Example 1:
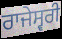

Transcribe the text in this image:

ਰਾਜੇਸ੍ਵਰੀ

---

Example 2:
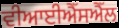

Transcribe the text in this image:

ਵੀਆਈਐੱਸਐੱਲ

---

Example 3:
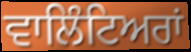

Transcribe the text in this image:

ਵਾਲਿੰਟਿਅਰਾਂ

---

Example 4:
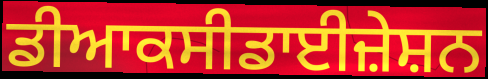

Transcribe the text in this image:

ਡੀਆਕਸੀਡਾਈਜ਼ੇਸ਼ਨ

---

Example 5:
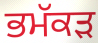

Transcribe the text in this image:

ਭਮੱਕੜ